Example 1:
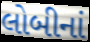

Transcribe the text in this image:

લોબીનાં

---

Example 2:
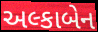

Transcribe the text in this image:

અલ્કાબેન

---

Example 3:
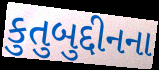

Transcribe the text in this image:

કુતુબુદ્દીનના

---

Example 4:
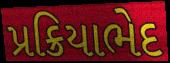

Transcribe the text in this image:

પ્રક્રિયાભેદ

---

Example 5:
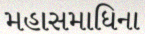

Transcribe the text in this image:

મહાસમાધિના